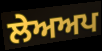
ਲੇਅਅਪ